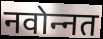
नवोन्नत